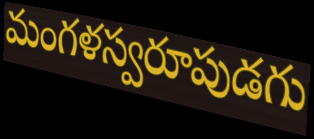
మంగళస్వరూపుడగు